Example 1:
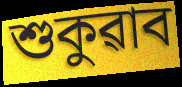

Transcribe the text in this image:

শুকুৱাব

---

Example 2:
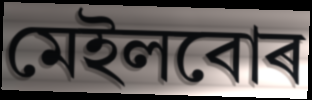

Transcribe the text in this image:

মেইলবোৰ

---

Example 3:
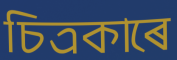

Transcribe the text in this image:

চিত্ৰকাৰে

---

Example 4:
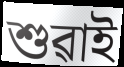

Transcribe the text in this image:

শুৱাই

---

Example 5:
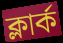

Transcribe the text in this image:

ক্লাৰ্ক